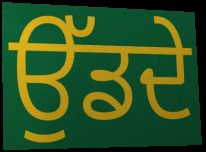
ਉੱਡਦੇ